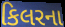
કિલરના